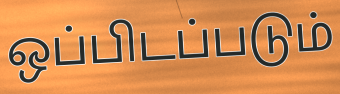
ஒப்பிடப்படும்